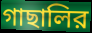
গাছালির